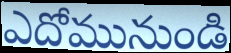
ఎదోమునుండి